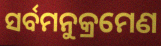
ସର୍ବମନୁକ୍ରମେଣ